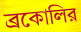
ব্রকোলির